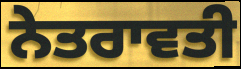
ਨੇਤਰਾਵਤੀ